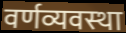
वर्णव्यवस्था